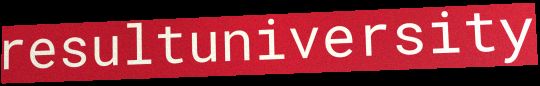
resultuniversity